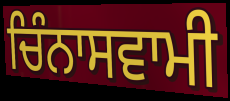
ਚਿੰਨਾਸਵਾਮੀ